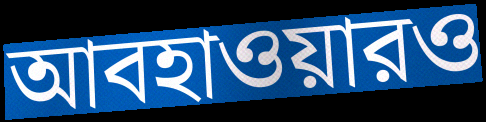
আবহাওয়ারও